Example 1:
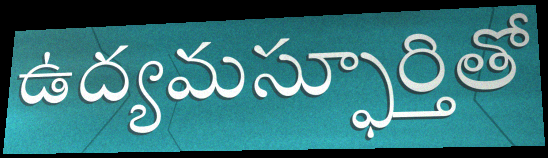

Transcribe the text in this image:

ఉద్యమస్ఫూర్తితో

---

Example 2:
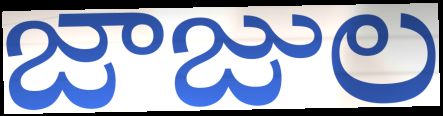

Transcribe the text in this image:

జాజుల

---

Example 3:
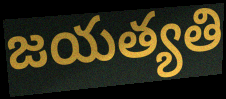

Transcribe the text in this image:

జయత్యతి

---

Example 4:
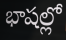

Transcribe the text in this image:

భాషల్లో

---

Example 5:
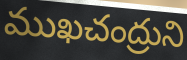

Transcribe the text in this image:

ముఖచంద్రుని